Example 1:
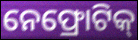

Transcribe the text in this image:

ନେଫ୍ରୋଟିକ୍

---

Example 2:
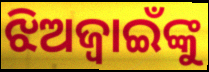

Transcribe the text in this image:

ଝିଅଜ୍ୱାଇଁଙ୍କୁ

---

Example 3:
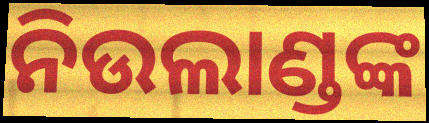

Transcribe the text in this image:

ନିଉଲାଣ୍ଡଙ୍କ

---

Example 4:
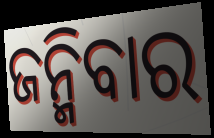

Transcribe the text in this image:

ଜନ୍ମିବାର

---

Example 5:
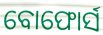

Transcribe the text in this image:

ବୋଫୋର୍ସ